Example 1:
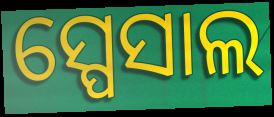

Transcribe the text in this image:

ସ୍ପେସାଲ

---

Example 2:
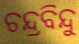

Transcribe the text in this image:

ଚନ୍ଦ୍ରବିନ୍ଦୁ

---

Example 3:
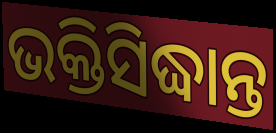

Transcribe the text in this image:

ଭକ୍ତିସିଦ୍ଧାନ୍ତ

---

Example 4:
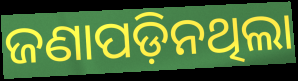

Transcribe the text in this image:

ଜଣାପଡ଼ିନଥିଲା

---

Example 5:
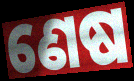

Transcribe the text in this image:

ଣେଷ